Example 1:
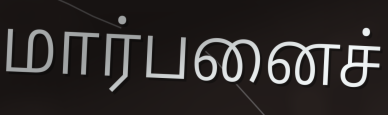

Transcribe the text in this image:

மார்பனைச்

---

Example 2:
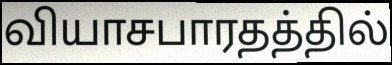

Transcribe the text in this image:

வியாசபாரதத்தில்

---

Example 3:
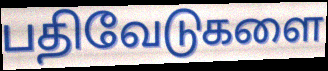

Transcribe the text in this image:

பதிவேடுகளை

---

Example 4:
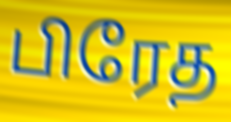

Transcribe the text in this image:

பிரேத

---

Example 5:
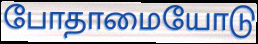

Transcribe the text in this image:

போதாமையோடு